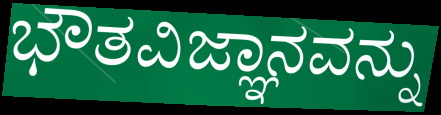
ಭೌತವಿಜ್ಞಾನವನ್ನು